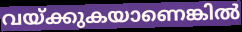
വയ്ക്കുകയാണെങ്കിൽ